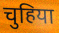
चुहिया